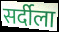
सर्दीला